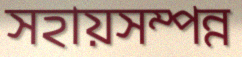
সহায়সম্পন্ন